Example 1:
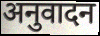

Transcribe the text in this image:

अनुवादन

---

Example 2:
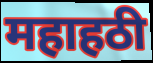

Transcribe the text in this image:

महाहठी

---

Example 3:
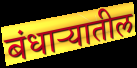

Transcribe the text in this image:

बंधाऱ्यातील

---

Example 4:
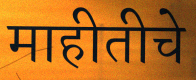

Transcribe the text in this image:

माहीतीचे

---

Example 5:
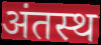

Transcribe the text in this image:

अंतस्थ